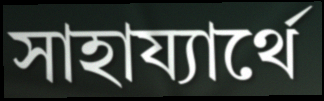
সাহায্যাৰ্থে